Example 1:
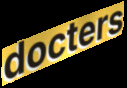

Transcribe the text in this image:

docters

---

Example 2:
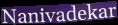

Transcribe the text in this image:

Nanivadekar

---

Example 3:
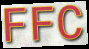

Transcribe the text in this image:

FFC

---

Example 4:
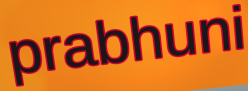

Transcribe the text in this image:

prabhuni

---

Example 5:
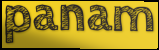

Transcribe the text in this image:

panam